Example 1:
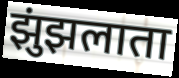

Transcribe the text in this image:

झुंझलाता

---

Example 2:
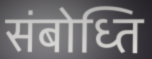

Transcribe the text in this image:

संबोध्ति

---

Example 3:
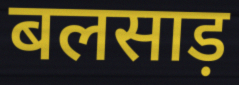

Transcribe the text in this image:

बलसाड़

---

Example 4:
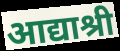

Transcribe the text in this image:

आद्याश्री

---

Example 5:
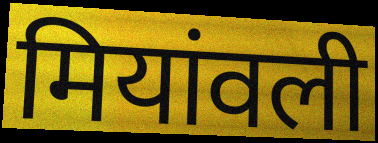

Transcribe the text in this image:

मियांवली